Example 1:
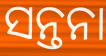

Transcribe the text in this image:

ସନ୍ତନା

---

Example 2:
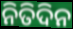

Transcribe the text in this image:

ନିତିଦିନ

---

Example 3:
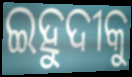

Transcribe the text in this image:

ଇହୁଦୀକୁ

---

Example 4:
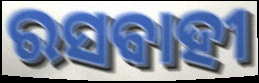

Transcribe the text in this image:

ରସବାହୀ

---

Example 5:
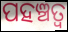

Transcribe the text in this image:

ପହଞ୍ଚତ୍ବ